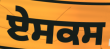
ਏਸਕਸ